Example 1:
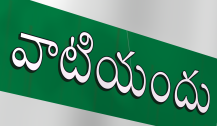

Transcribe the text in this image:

వాటియందు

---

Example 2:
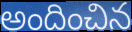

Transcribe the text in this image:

అందించిన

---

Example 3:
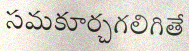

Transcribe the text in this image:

సమకూర్చగలిగితే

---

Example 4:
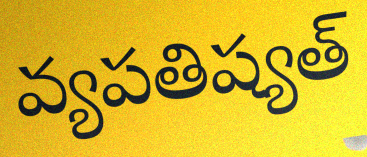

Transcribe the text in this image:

వ్యపతిష్యత్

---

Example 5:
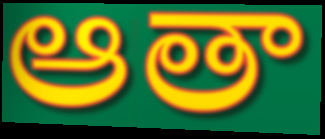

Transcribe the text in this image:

ఆతా